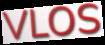
VLOS